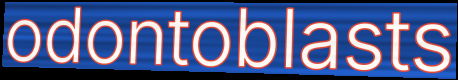
odontoblasts